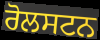
ਰੋਲਸਟਨ